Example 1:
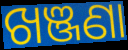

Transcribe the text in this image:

ଖଞ୍ଜଣା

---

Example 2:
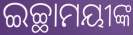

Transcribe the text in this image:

ଇଚ୍ଛାମୟୀଙ୍କ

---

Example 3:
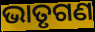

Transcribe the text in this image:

ଭାତୃଗଣ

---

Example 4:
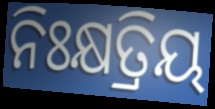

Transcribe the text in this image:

ନିଃକ୍ଷତ୍ରିୟ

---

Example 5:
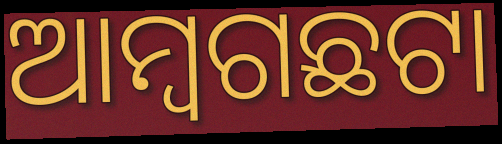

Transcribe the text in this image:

ଆମ୍ବଗଛଟା